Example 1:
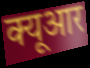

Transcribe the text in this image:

क्‍यूआर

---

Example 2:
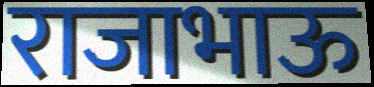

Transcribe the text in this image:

राजाभाऊ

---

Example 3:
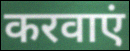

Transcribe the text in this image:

करवाएं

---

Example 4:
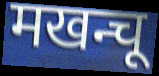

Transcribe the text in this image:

मखन्चू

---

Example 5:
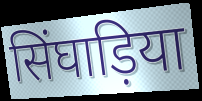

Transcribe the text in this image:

सिंघाड़िया